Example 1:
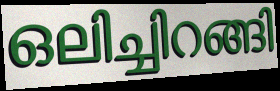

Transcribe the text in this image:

ഒലിച്ചിറങ്ങി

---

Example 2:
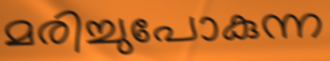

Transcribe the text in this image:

മരിച്ചുപോകുന്ന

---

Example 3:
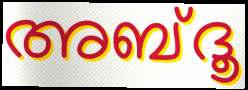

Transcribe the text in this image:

അബ്ദൂ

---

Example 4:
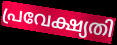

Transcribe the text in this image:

പ്രവേക്ഷ്യതി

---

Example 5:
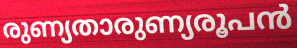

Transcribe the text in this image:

രുണ്യതാരുണ്യരൂപൻ